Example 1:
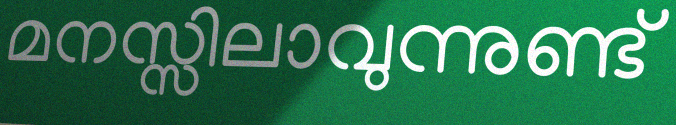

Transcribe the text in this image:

മനസ്സിലാവുന്നുണ്ട്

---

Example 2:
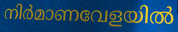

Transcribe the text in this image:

നിർമാണവേളയിൽ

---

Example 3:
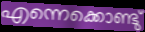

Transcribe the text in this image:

എന്നെക്കൊണ്ടു്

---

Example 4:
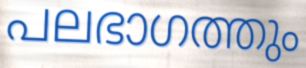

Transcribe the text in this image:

പലഭാഗത്തും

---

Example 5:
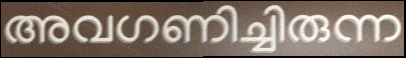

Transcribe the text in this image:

അവഗണിച്ചിരുന്ന